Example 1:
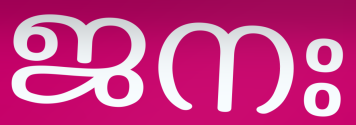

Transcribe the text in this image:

ജനഃ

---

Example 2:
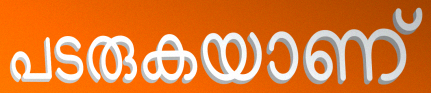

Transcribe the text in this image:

പടരുകയാണ്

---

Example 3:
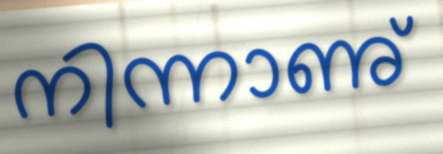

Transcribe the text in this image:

നിന്നാണു്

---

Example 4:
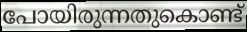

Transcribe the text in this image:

പോയിരുന്നതുകൊണ്ട്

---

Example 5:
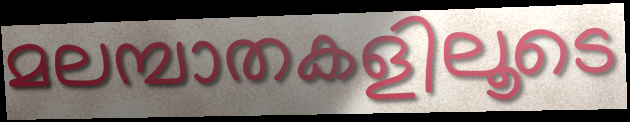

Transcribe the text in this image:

മലമ്പാതകളിലൂടെ